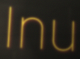
Inu